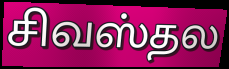
சிவஸ்தல